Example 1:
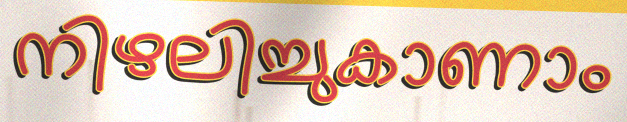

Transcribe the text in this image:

നിഴലിച്ചുകാണാം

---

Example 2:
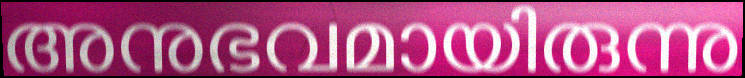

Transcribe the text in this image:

അനുഭവമായിരുന്നു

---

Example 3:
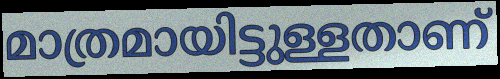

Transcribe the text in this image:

മാത്രമായിട്ടുള്ളതാണ്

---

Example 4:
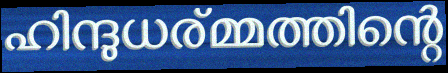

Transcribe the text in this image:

ഹിന്ദുധര്മ്മത്തിന്റെ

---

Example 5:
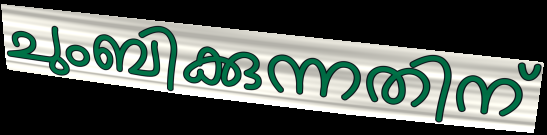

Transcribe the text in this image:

ചുംബിക്കുന്നതിന്